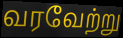
வரவேற்று